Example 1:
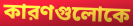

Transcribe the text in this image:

কারণগুলোকে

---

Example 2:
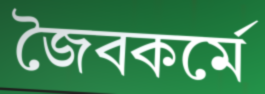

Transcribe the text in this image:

জৈবকর্মে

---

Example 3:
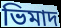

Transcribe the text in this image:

ভিমাদ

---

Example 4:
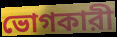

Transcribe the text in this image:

ভোগকারী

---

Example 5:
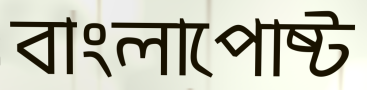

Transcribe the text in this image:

বাংলাপোষ্ট